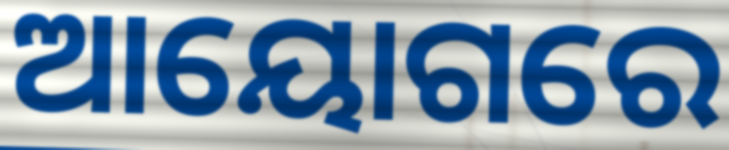
ଆୟୋଗରେ